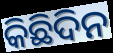
କିଛିଦିନ